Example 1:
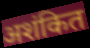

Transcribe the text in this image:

अशंकित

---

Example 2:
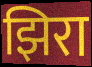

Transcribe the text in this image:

झिरा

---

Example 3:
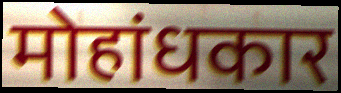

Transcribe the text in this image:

मोहांधकार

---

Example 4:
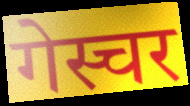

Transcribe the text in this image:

गेस्चर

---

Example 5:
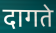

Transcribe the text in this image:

दागते